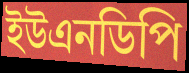
ইউএনডিপি